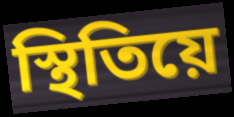
স্থিতিয়ে